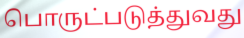
பொருட்படுத்துவது